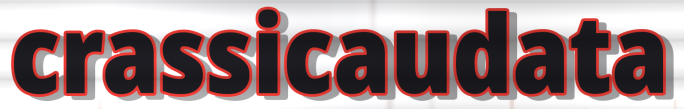
crassicaudata